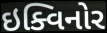
ઇક્વિનોર